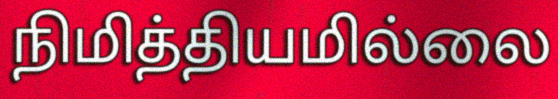
நிமித்தியமில்லை